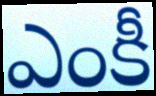
ఎంకీ